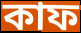
কাফ